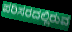
ಪರಿಸರದಲ್ಲಿರುವ